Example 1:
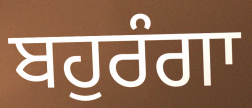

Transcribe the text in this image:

ਬਹੁਰੰਗਾ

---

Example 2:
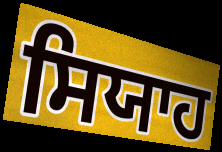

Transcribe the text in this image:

ਸਿਯਾਹ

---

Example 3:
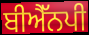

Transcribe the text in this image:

ਬੀਐੱਨਪੀ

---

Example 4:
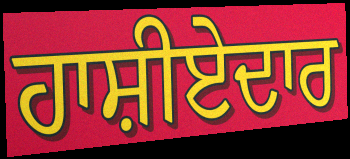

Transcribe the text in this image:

ਹਾਸ਼ੀਏਦਾਰ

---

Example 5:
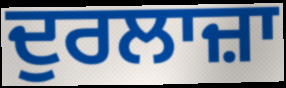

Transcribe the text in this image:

ਦੁਰਲਾਜ਼ਾ